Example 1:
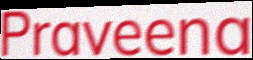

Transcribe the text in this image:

Praveena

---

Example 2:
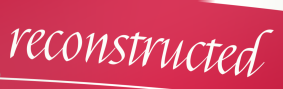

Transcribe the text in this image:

reconstructed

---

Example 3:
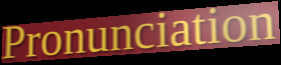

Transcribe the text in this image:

Pronunciation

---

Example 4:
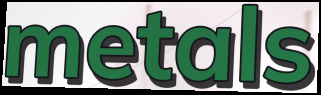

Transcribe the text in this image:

metals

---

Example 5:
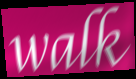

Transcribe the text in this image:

walk